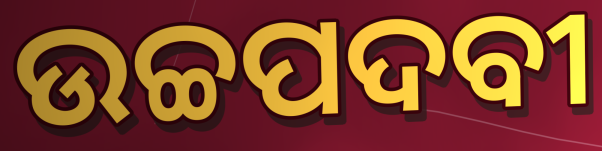
ଉଚ୍ଚପଦବୀ